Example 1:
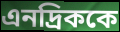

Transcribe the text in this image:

এনদ্রিককে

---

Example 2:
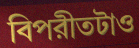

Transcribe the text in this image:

বিপরীতটাও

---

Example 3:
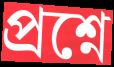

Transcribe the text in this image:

প্রশ্নে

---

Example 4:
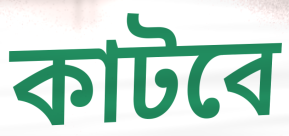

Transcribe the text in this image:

কাটবে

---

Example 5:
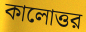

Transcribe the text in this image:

কালোত্তর